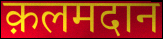
क़लमदान